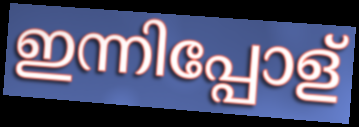
ഇന്നിപ്പോള്